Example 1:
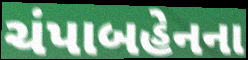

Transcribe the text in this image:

ચંપાબહેનના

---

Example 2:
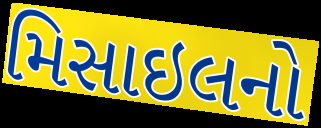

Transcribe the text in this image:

મિસાઇલનો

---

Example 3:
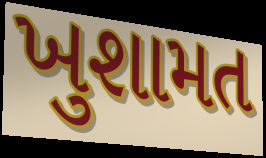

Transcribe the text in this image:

ખુશામત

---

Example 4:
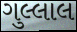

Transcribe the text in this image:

ગુલ્લાલ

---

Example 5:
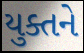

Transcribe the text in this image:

યુક્તને